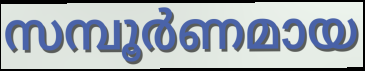
സമ്പൂർണമായ